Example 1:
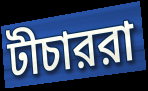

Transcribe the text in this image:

টীচাররা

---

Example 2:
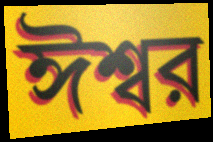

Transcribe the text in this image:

ঈশ্বর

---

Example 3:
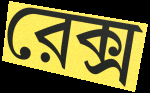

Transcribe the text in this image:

রেক্স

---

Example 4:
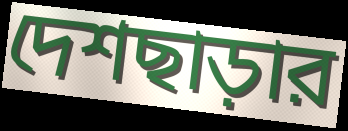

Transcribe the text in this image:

দেশছাড়ার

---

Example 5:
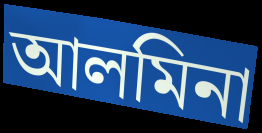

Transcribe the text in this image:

আলমিনা